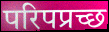
परिपप्रच्छ